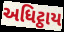
અધિટ્ઠાય